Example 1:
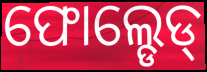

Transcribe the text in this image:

ଫୋଲ୍ଡେଡ୍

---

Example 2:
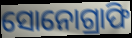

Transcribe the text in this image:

ସୋନୋଗ୍ରାଫି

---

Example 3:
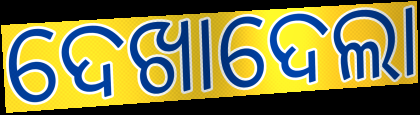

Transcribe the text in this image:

ଦେଖାଦେଲା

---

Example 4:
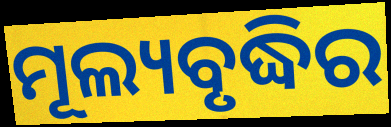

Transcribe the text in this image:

ମୂଲ୍ୟବୃଦ୍ଧିର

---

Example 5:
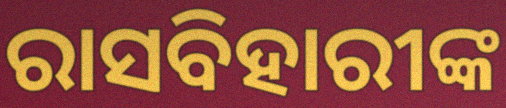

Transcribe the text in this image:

ରାସବିହାରୀଙ୍କ